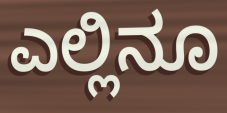
ಎಲ್ಲಿನೂ